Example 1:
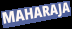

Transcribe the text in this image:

MAHARAJA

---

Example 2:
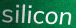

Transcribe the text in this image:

silicon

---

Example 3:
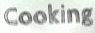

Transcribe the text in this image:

Cooking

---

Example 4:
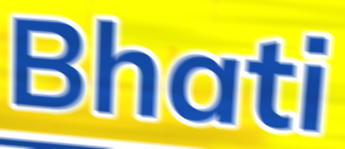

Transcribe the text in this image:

Bhati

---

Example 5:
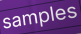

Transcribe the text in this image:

samples